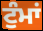
ਟੁੰਮਾਂ